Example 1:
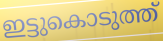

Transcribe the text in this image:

ഇട്ടുകൊടുത്ത്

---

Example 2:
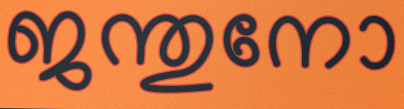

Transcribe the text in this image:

ജന്തുനോ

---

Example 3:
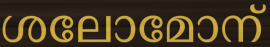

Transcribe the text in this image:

ശലോമോന്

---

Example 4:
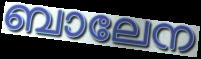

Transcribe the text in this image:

ബാലേന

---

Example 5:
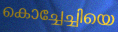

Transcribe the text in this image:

കൊച്ചേച്ചിയെ